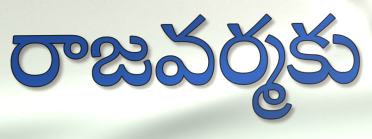
రాజవర్మకు